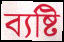
ব্যষ্টি